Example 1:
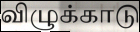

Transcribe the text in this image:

விழுக்காடு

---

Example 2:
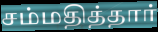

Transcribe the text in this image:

சம்மதித்தார்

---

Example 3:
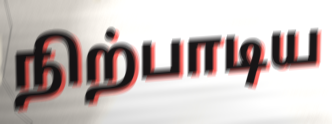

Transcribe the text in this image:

நிற்பாடிய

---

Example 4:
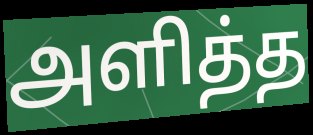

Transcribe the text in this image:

அளித்த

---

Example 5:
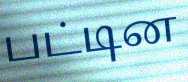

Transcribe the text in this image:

பட்டின